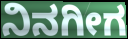
ನಿನಗೀಗ